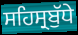
ਸਹਿਸ੍ਰਬੁੱਧੇ